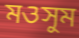
মওসুম